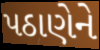
પઠાણેને